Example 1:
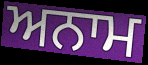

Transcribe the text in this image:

ਅਨਾਮ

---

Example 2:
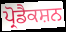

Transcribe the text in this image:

ਪ੍ਰੋਡੈਕਸ਼ਨ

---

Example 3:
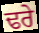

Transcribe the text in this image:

ਢਰੇ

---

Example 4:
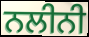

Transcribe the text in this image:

ਨਲੀਨੀ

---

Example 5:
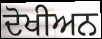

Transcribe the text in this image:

ਦੋਖੀਅਨ